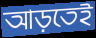
আড়তেই